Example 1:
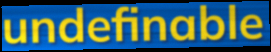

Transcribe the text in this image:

undefinable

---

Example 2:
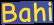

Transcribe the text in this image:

Bahi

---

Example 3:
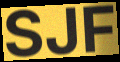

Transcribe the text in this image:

SJF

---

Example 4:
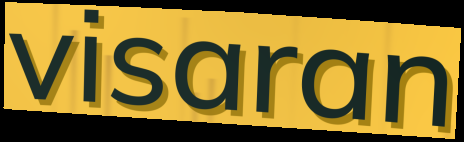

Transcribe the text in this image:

visaran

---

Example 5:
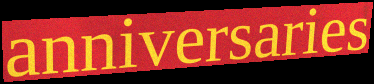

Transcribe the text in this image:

anniversaries